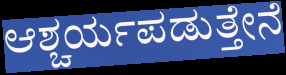
ಆಶ್ಚರ್ಯಪಡುತ್ತೇನೆ